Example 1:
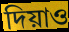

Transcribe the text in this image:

দিয়াও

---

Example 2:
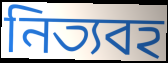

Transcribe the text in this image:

নিত্যবহ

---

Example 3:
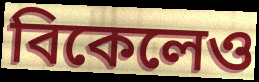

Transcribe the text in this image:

বিকেলেও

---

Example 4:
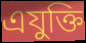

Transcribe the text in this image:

এযুক্তি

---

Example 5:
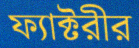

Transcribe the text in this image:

ফ্যাক্টরীর